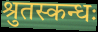
श्रुतस्कन्धः